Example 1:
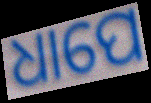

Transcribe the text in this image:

ଧାପେ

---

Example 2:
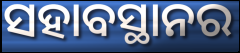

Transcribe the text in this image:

ସହାବସ୍ଥାନର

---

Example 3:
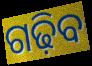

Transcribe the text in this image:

ଗଢ଼ିବ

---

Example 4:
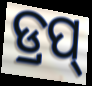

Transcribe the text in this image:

ଡ୍ରପ୍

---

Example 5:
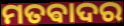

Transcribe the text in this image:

ମତଵାଦର